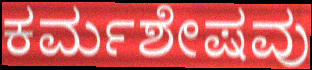
ಕರ್ಮಶೇಷವು